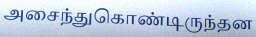
அசைந்துகொண்டிருந்தன